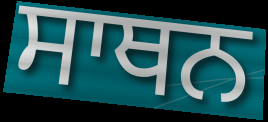
ਸਾਥਨ